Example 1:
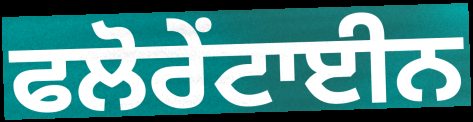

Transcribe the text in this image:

ਫਲੋਰੇਂਟਾਈਨ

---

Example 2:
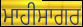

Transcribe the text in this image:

ਮਾਹੀਸਾਗਰ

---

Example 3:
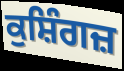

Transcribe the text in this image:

ਕੁਸ਼ਿੰਗਜ਼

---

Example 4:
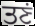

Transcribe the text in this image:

ਤਣਂ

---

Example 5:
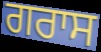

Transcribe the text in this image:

ਗਰਾਸ